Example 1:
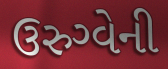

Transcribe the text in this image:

ઉરુગ્વેની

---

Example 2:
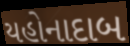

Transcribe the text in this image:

યહોનાદાબ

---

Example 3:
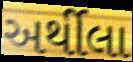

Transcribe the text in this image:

અર્થીલા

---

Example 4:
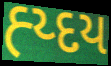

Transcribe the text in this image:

હ્ય્દય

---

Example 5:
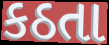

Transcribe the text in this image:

કઠતા